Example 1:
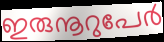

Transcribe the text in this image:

ഇരുനൂറുപേർ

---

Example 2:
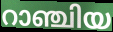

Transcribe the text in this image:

റാഞ്ചിയ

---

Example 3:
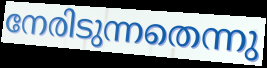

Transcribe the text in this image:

നേരിടുന്നതെന്നു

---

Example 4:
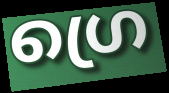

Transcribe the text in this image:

ഗ്രെ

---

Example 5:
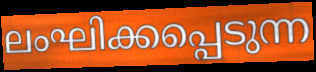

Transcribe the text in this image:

ലംഘിക്കപ്പെടുന്ന